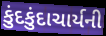
કુંદકુંદાચાર્યની